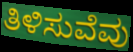
ತಿಳಿಸುವೆವು